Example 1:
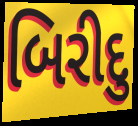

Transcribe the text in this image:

બિરીદુ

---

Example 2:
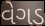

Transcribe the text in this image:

વેગડ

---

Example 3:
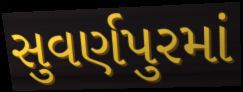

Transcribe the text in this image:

સુવર્ણપુરમાં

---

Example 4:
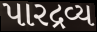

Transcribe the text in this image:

પારદ્રવ્ય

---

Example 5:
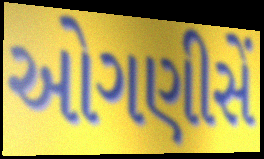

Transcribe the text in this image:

ઓગણીસેં